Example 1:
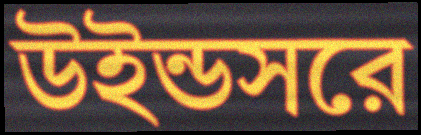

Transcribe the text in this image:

উইন্ডসরে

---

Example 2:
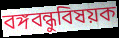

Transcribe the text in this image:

বঙ্গবন্ধুবিষয়ক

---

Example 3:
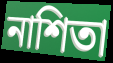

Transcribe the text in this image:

নাশিতা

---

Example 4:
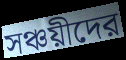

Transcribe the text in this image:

সঞ্চয়ীদের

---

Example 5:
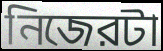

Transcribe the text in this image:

নিজেরটা